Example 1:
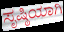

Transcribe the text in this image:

ಸೃಷ್ಠಿಯಾಗಿ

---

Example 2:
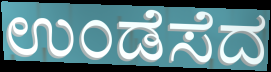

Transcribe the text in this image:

ಉಂಡೆಸೆದ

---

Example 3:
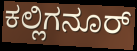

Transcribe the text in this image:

ಕಲ್ಲಿಗನೂರ್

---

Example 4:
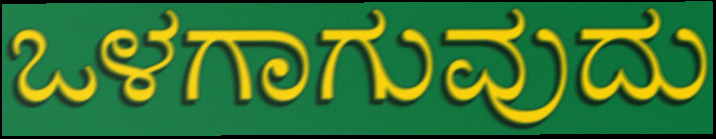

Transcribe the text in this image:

ಒಳಗಾಗುವುದು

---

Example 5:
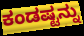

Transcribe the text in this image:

ಕಂಡಷ್ಟನ್ನು